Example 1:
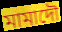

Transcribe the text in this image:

মামাদৌ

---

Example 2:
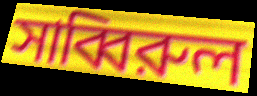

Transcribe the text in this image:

সাব্বিরুল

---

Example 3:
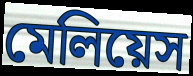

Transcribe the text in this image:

মেলিয়েস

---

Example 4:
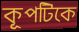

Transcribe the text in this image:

কূপটিকে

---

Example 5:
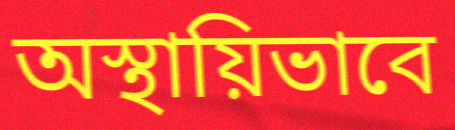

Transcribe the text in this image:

অস্থায়িভাবে